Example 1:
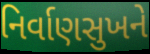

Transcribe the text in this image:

નિર્વાણસુખને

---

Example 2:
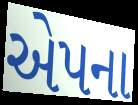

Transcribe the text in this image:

એપના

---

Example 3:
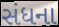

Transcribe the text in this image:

સંધના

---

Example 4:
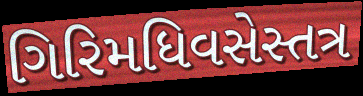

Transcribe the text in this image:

ગિરિમધિવસેસ્તત્ર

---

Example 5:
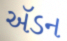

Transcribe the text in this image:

ઍડન